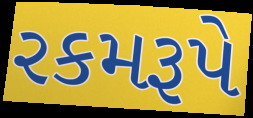
રકમરૂપે